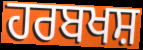
ਹਰਬਖਸ਼